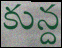
కున్ద